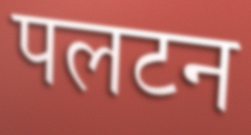
पलटन